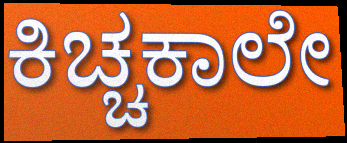
ಕಿಚ್ಚಕಾಲೇ